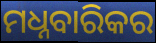
ମଧ୍ନବାରିକର